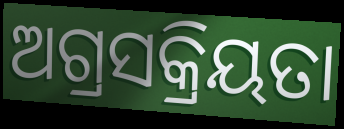
ଅଗ୍ରସକ୍ରିୟତା